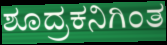
ಶೂದ್ರಕನಿಗಿಂತ